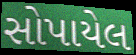
સોપાયેલ